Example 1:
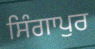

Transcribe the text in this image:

ਸਿੰਗਾਪੁਰ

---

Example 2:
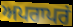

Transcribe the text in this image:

ਅਪਰਾਪਰਂ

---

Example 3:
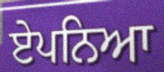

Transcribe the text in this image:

ਏਪਨਿਆ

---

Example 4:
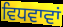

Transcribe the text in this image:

ਵਿਧਵਾਵਾਂ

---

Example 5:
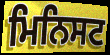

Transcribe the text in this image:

ਮਿਨਿਸਟ